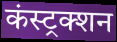
कंस्‍ट्रक्‍शन